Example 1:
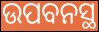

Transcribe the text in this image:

ଉପବନସ୍ଥ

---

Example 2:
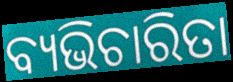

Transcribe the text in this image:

ବ୍ୟଭିଚାରିତା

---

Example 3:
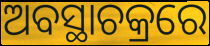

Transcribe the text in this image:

ଅବସ୍ଥାଚକ୍ରରେ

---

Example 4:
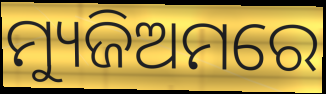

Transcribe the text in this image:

ମ୍ୟୁଜିଅମରେ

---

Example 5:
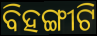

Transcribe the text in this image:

ବିହଙ୍ଗୀଟି